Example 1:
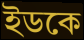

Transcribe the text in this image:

ইডকে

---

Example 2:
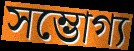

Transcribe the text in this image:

সম্ভোগ্য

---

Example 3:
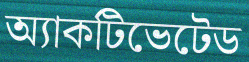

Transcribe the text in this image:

অ্যাকটিভেটেড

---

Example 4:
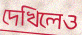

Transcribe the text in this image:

দেখিলেও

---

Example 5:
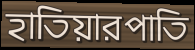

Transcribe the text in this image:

হাতিয়ারপাতি